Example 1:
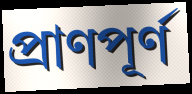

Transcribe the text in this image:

প্রাণপূর্ণ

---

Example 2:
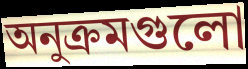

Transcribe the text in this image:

অনুক্রমগুলো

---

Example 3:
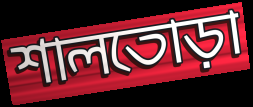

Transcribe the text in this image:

শালতোড়া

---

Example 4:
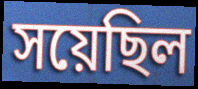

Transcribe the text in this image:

সয়েছিল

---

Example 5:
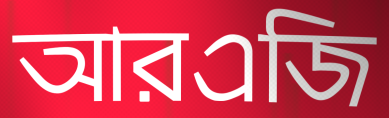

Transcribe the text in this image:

আরএজি